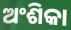
ଅଂଶିକା